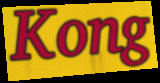
Kong